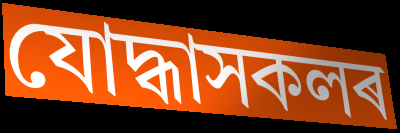
যোদ্ধাসকলৰ